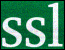
ssl